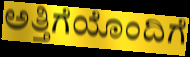
ಅತ್ತಿಗೆಯೊಂದಿಗೆ